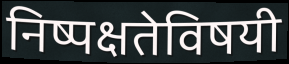
निष्पक्षतेविषयी